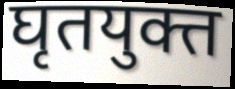
घृतयुक्त